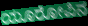
ಯೂರೋಪಿನ